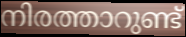
നിരത്താറുണ്ട്